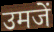
उमजें